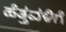
ಹೆತ್ತವಳಿಗೆ